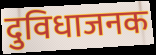
दुविधाजनक